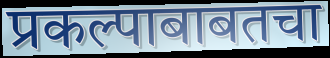
प्रकल्पाबाबतचा